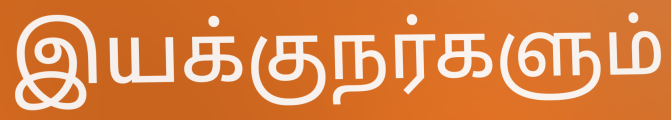
இயக்குநர்களும்